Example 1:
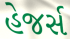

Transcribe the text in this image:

હેજર્સ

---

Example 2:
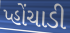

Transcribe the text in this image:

પ્હોંચાડી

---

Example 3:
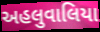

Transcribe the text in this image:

અહલુવાલિયા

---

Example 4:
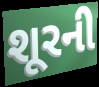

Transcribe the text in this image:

શૂરની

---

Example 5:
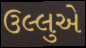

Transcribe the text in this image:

ઉલ્લુએ